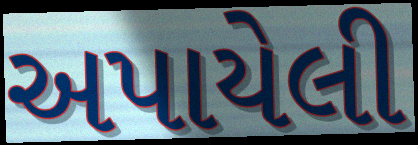
અપાયેલી